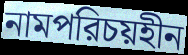
নামপরিচয়হীন